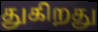
துகிறது